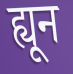
ह्यून